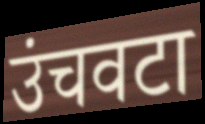
उंचवटा